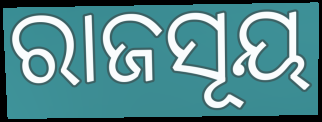
ରାଜସୂୟ